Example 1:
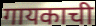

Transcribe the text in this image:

गायकाची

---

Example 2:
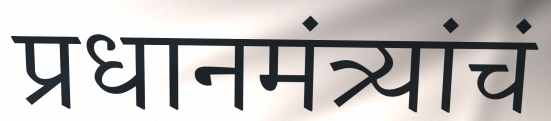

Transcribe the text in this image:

प्रधानमंत्र्यांचं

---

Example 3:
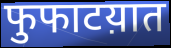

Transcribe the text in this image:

फुफाटय़ात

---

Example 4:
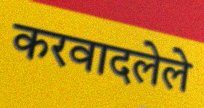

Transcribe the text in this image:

करवादलेले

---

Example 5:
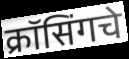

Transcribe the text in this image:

क्रॉसिंगचे